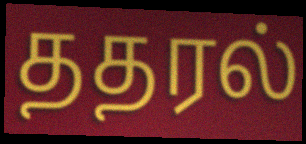
ததரல்